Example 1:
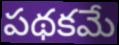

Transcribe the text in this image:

పథకమే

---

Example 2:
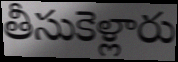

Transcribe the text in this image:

తీసుకెళ్లారు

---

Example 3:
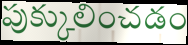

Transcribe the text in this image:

పుక్కులించడం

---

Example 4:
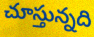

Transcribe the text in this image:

చూస్తున్నది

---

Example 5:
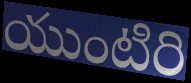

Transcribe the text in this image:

యుంటిరి